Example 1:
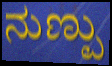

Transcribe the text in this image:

ನುಣ್ಪು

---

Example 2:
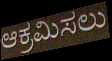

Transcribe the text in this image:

ಆಕ್ರಮಿಸಲು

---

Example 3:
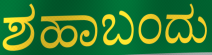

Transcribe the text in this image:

ಶಹಾಬಂದು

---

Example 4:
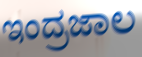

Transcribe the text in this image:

ಇಂದ್ರಜಾಲ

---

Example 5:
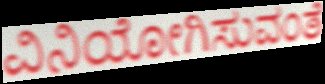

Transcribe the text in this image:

ವಿನಿಯೋಗಿಸುವಂತೆ